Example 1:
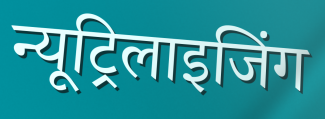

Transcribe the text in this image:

न्यूट्रिलाइजिंग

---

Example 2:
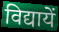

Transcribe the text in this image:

विद्यायें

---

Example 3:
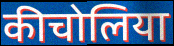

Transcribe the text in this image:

कीचोलिया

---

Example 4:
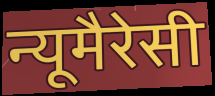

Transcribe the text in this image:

न्यूमैरेसी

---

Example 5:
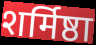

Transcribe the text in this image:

शर्मिष्ठा